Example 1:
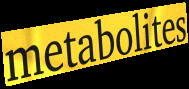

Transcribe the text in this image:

metabolites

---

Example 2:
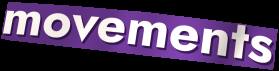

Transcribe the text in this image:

movements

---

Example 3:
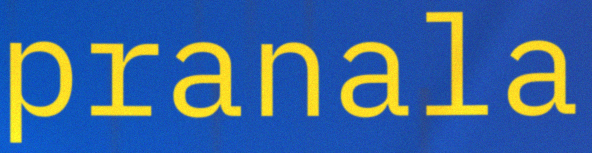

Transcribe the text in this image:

pranala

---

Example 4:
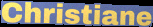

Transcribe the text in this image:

Christiane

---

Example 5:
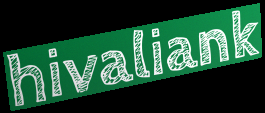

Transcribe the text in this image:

hivaliank